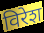
विरेश